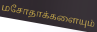
மசோதாக்களையும்